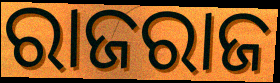
ରାଜରାଜ